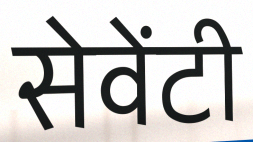
सेवेंटी